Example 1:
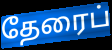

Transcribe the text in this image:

தேரைப்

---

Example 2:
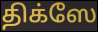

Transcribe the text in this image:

திக்ஸே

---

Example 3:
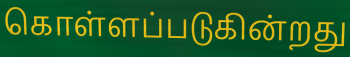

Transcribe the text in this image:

கொள்ளப்படுகின்றது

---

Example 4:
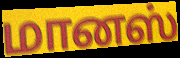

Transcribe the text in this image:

மானஸ்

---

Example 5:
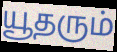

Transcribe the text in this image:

யூதரும்